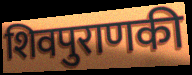
शिवपुराणकी